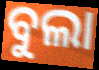
ବୁଲା